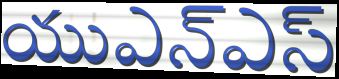
యుఎన్ఎస్